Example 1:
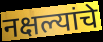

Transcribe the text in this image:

नक्षल्यांचे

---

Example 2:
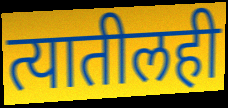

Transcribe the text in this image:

त्यातीलही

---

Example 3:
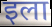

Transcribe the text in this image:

इला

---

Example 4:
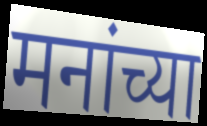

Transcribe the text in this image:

मनांच्या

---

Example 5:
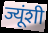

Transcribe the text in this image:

ज्यूंशी